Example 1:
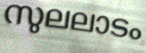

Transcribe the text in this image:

സുലലാടം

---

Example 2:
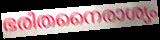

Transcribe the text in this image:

ഭരിതനൈരാശ്യം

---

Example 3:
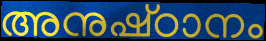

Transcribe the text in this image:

അനുഷ്‌ഠാനം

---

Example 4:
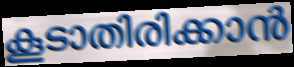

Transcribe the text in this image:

കൂടാതിരിക്കാൻ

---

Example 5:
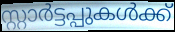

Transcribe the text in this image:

സ്റ്റാർട്ടപ്പുകൾക്ക്